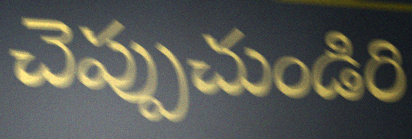
చెప్పుచుండిరి